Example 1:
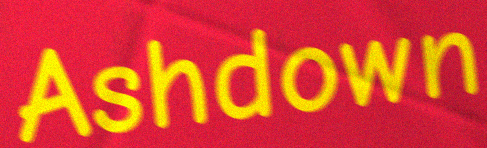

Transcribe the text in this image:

Ashdown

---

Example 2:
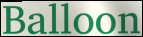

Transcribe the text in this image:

Balloon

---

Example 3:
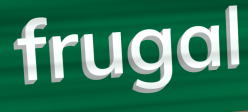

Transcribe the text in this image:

frugal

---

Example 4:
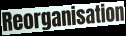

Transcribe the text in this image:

Reorganisation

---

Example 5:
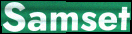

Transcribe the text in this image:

Samset